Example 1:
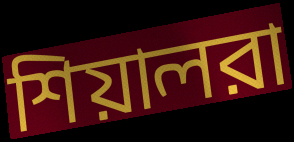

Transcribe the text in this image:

শিয়ালরা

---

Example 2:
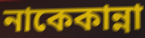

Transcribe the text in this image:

নাকেকান্না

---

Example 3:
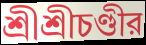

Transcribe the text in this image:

শ্রীশ্রীচণ্ডীর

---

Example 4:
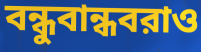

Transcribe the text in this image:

বন্ধুবান্ধবরাও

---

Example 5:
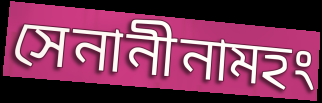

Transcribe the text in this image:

সেনানীনামহং